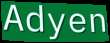
Adyen